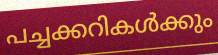
പച്ചക്കറികൾക്കും